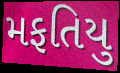
મફતિયુ